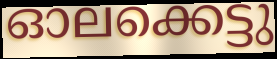
ഓലക്കെട്ടു